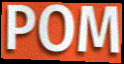
POM